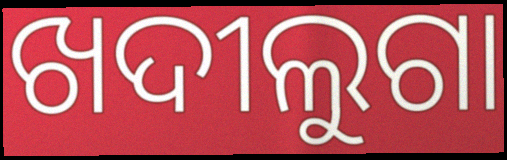
ଖଦୀଲୁଗା